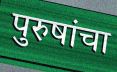
पुरुषांचा